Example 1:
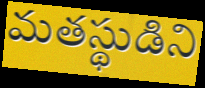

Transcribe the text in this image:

మతస్థుడిని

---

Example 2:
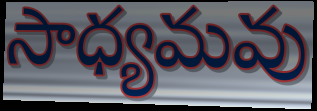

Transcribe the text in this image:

సాధ్యమవు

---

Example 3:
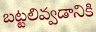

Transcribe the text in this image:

బట్టలివ్వడానికి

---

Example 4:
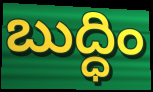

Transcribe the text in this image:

బుద్ధిం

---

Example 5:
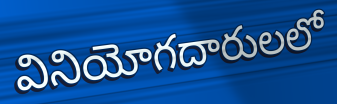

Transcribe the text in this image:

వినియోగదారులలో